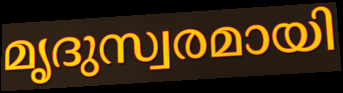
മൃദുസ്വരമായി